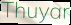
Thuyar